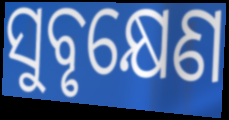
ସୁବୃକ୍ଷେଣ